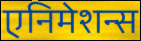
एनिमेशन्स